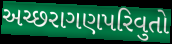
અચ્છરાગણપરિવુતો